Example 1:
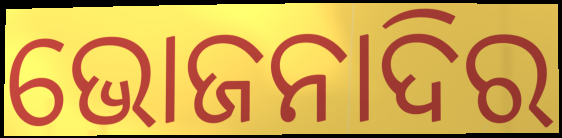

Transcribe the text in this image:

ଭୋଜନାଦିର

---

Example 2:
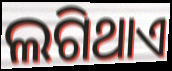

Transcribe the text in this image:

ଲଗିଥାଏ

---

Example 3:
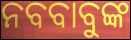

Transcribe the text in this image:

ନବବାବୁଙ୍କ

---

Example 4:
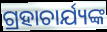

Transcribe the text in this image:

ଗ୍ରହାଚାର୍ଯ୍ୟଙ୍କ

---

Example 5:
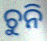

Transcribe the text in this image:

ଚୁନି